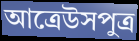
আত্রেউসপুত্র